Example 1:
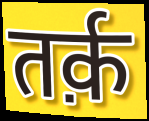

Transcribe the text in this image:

तर्क़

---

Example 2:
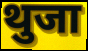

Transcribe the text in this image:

थुजा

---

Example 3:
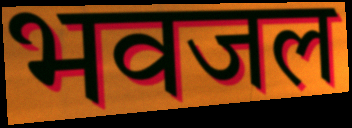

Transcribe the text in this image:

भवजल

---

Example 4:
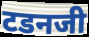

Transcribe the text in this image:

टडनजी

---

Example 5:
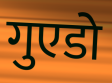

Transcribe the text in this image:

गुएडो